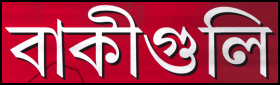
বাকীগুলি